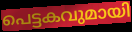
പെട്ടകവുമായി